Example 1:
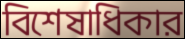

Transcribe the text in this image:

বিশেষাধিকার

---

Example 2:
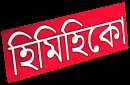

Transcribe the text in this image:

হিমিহিকো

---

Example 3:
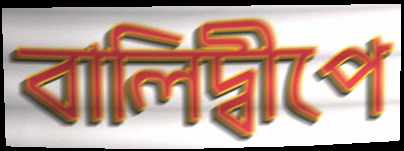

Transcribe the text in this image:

বালিদ্বীপে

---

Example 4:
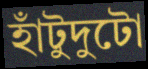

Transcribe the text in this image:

হাঁটুদুটো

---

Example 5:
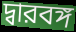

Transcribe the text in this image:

দ্বারবঙ্গ